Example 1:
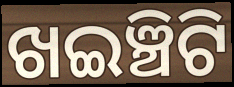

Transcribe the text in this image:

ଖଇଞ୍ଚିଟି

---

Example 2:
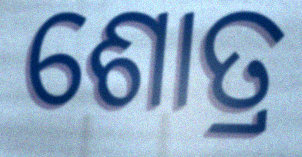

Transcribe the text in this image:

ଶୋତ୍ର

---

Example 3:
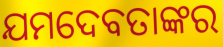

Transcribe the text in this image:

ଯମଦେବତାଙ୍କର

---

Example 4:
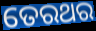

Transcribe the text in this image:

ତେରଥର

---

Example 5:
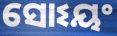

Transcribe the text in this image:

ସୋଽୟଂ